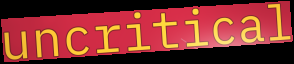
uncritical